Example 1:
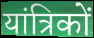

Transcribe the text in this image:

यांत्रिकों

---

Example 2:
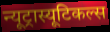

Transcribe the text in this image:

न्यूट्रास्यूटिकल्स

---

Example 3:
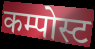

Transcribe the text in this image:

कम्पोस्ट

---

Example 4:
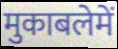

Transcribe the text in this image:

मुकाबलेमें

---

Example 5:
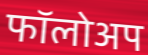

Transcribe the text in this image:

फॉलोअप